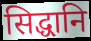
सिद्धानि